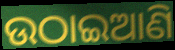
ଉଠାଇଆଣି